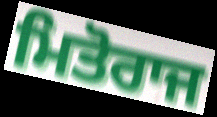
ਮਿਤੋਰਾਜ